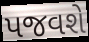
પજવશે